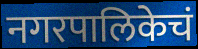
नगरपालिकेचं